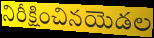
నిరీక్షించినయెడల